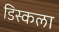
डिस्कला